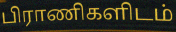
பிராணிகளிடம்